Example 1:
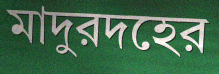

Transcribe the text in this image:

মাদুরদহের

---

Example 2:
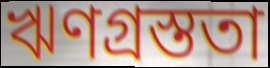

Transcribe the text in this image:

ঋণগ্রস্ততা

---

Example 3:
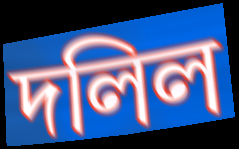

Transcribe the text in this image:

দলিল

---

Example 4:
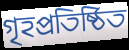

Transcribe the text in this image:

গৃহপ্রতিষ্ঠিত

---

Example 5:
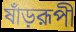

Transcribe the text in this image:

ষাঁড়রূপী